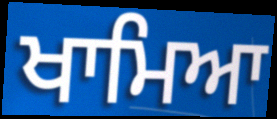
ਖਾਮਿਆ